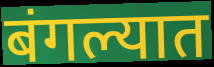
बंगल्यात